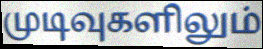
முடிவுகளிலும்